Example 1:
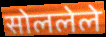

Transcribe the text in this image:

सोललेले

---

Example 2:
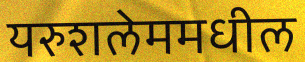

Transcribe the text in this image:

यरुशलेममधील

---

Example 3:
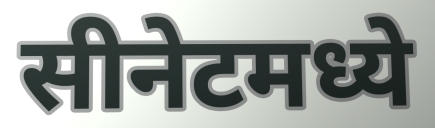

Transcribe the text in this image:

सीनेटमध्ये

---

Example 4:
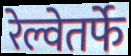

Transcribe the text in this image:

रेल्वेतर्फे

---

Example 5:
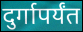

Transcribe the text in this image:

दुर्गापर्यंत